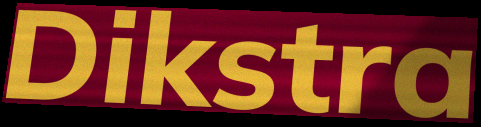
Dikstra